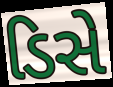
ડિસે